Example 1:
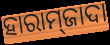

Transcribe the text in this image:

ହାରାମ୍‌ଜାଦା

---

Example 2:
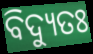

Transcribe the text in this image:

ବିଦ୍ୟୁତଃ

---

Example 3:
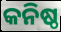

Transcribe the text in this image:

କନିଷ୍ଠ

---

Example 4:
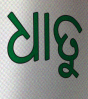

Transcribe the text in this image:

ଧାତୁ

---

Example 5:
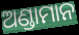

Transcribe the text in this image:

ଅଣ୍ଡାମାନ